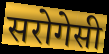
सरोगेसी